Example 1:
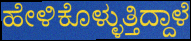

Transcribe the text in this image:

ಹೇಳಿಕೊಳ್ಳುತ್ತಿದ್ದಾಳೆ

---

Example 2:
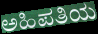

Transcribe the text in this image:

ಅಹಿಪತಿಯ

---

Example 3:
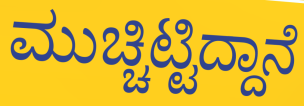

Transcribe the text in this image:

ಮುಚ್ಚಿಟ್ಟಿದ್ದಾನೆ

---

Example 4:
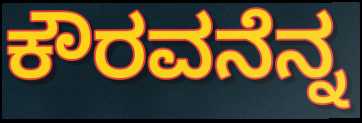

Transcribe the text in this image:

ಕೌರವನೆನ್ನ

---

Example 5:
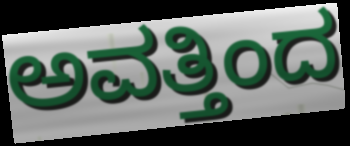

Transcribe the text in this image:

ಅವತ್ತಿಂದ